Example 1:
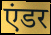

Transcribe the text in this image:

एंडर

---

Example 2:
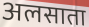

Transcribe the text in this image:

अलसाता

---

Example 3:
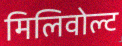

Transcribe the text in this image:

मिलिवोल्ट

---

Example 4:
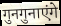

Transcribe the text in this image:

गुनगुनाएंगे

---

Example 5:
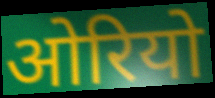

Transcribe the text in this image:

ओरियो